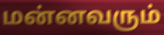
மன்னவரும்